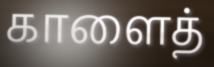
காளைத்